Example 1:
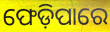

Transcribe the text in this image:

ଫେଡ଼ିପାରେ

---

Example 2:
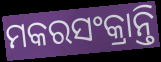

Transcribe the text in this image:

ମକରସଂକ୍ରାନ୍ତି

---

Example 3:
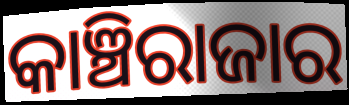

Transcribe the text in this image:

କାଞ୍ଚିରାଜାର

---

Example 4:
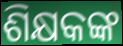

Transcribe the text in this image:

ଶିକ୍ଷକଙ୍କ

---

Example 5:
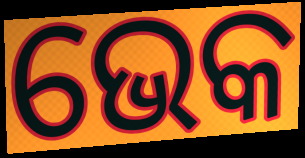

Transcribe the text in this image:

ଭେକ